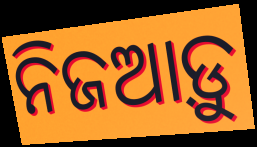
ନିଜଆଡ଼ୁ